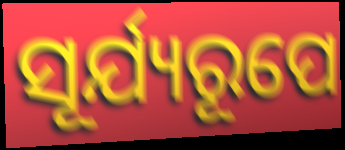
ସୂର୍ଯ୍ୟରୂପେ